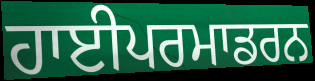
ਹਾਈਪਰਮਾਡਰਨ